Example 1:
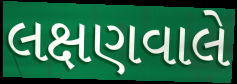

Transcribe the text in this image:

લક્ષણવાલે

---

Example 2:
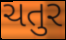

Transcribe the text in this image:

ચતુર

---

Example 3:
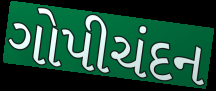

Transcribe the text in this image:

ગોપીચંદન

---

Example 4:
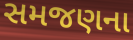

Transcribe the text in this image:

સમજણના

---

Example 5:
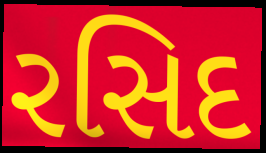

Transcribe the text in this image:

રસિદ